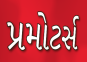
પ્રમોટર્સ